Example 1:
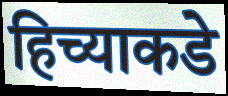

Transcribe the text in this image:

हिच्याकडे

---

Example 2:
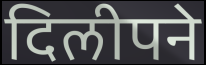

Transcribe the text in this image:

दिलीपने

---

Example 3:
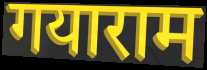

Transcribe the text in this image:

गयाराम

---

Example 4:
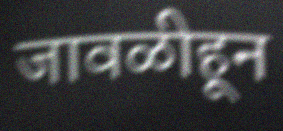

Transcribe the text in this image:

जावळीहून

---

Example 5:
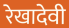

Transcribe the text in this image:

रेखादेवी